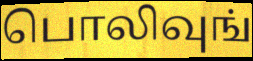
பொலிவுங்